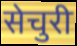
सेचुरी